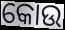
କୋଉ